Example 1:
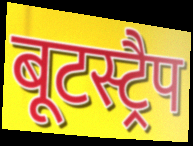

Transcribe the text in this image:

बूटस्ट्रैप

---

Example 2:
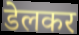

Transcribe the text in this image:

डेलकर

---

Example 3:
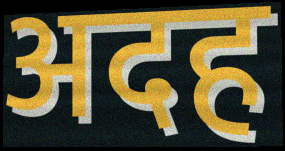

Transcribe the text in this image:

अदह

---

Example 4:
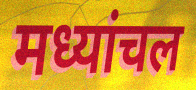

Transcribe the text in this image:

मध्यांचल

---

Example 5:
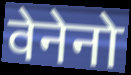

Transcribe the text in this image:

वेनेनो